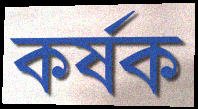
কর্ষক